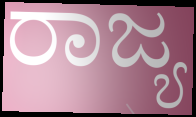
ರಾಜ್ಯ